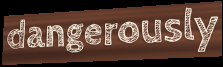
dangerously